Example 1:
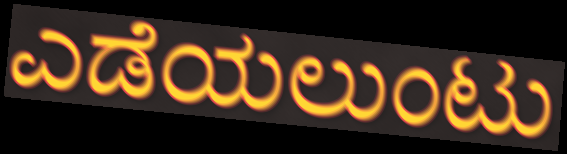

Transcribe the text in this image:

ಎಡೆಯಲುಂಟು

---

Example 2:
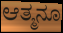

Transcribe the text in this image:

ಆತ್ಮನೂ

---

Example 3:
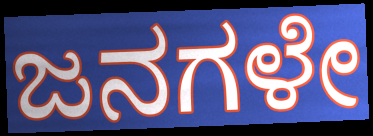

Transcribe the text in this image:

ಜನಗಳೇ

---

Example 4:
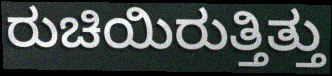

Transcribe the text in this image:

ರುಚಿಯಿರುತ್ತಿತ್ತು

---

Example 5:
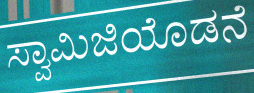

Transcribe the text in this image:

ಸ್ವಾಮಿಜಿಯೊಡನೆ